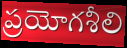
ప్రయోగశీలి